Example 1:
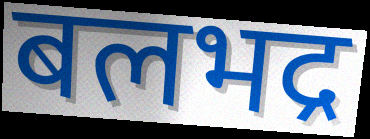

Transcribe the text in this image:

बलभद्र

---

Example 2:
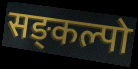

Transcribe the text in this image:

सङ्कल्पो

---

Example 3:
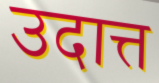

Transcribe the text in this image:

उदात्त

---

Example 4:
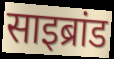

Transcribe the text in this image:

साइब्रांड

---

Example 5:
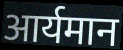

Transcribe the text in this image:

आर्यमान